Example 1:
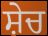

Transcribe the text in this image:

ਸ਼ੇਚ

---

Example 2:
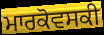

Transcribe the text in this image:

ਮਾਰਕੋਵਸਕੀ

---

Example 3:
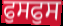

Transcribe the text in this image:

ਫੁਸਫੁਸ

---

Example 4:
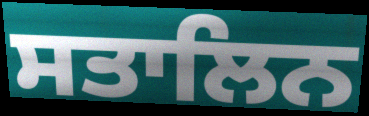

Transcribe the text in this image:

ਸਤਾਲਿਨ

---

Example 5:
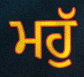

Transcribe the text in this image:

ਮਹੁੱ